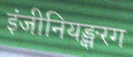
इंजीनियङ्क्षरग